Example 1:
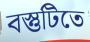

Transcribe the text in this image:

বস্তুটিতে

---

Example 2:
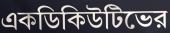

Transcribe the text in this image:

একডিকিউটিভের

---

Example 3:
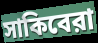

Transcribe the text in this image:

সাকিবেরা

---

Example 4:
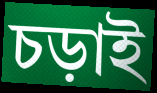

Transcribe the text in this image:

চড়াই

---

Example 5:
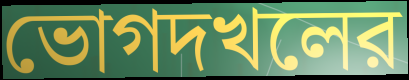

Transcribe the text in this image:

ভোগদখলের